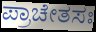
ಪ್ರಾಚೇತಸಃ